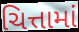
ચિત્તામાં